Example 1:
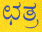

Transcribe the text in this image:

ಛತ್ರ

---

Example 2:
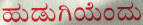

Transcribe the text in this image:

ಹುಡುಗಿಯೆಂದು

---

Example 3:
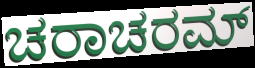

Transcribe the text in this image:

ಚರಾಚರಮ್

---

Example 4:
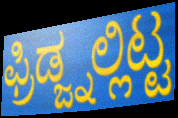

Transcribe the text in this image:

ಫ್ರಿಡ್ಜ್ನಲ್ಲಿಟ್ಟ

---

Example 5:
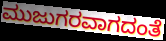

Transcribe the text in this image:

ಮುಜುಗರವಾಗದಂತೆ